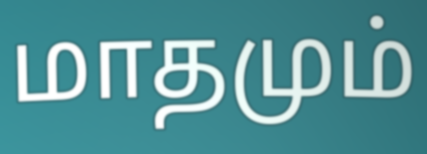
மாதமும்